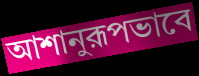
আশানুরূপভাবে